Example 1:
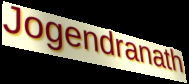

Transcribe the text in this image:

Jogendranath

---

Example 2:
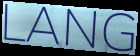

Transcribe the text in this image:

LANG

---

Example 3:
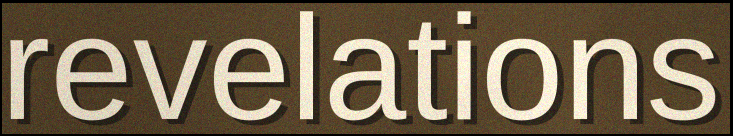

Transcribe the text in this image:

revelations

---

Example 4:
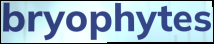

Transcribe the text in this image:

bryophytes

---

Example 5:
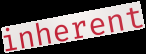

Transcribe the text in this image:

inherent